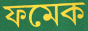
ফমেক